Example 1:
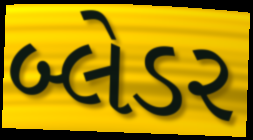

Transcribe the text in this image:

બ્લેડર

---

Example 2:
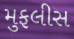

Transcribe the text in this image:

મુફલીસ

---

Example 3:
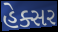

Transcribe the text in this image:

હેક્સર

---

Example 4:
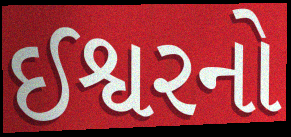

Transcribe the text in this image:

ઈશ્વરનો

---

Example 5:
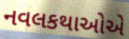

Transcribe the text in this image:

નવલકથાઓએ